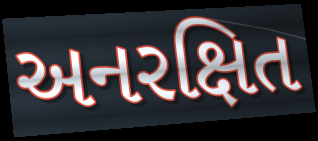
અનરક્ષિત